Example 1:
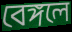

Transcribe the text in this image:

বেঙ্গলে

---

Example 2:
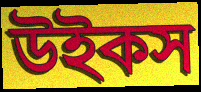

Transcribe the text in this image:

উইকস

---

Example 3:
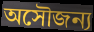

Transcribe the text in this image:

অসৌজন্য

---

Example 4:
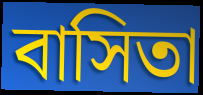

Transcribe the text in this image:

বাসিতা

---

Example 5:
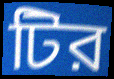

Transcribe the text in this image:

টির